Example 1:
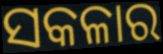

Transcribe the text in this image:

ସକଳାର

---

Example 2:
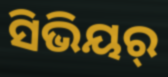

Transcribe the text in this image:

ସିଭିୟର୍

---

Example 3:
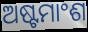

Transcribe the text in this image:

ଅଷ୍ଟମାଂଶ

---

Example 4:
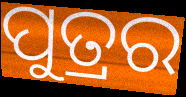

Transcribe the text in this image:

ପୁତ୍ରର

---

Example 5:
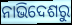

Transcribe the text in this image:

ନାଭିଦେଶରୁ